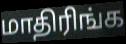
மாதிரிங்க